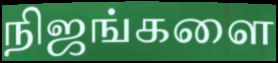
நிஜங்களை